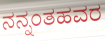
ನನ್ನಂತಹವರ